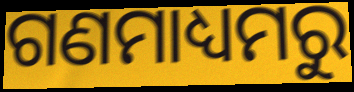
ଗଣମାଧ୍ୟମରୁ